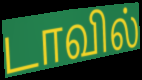
டாவில்